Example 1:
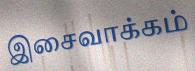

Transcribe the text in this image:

இசைவாக்கம்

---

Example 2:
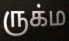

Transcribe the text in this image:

ருக்ம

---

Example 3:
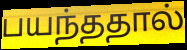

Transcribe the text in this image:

பயந்ததால்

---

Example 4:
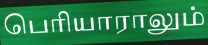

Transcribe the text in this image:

பெரியாராலும்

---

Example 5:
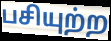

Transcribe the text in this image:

பசியுற்ற